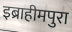
इब्राहीमपुरा